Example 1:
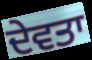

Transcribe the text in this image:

ਦੇਵਤਾ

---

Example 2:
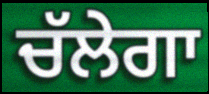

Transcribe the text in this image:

ਚੱਲੇਗਾ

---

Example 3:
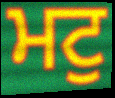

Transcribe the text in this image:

ਮਟੁ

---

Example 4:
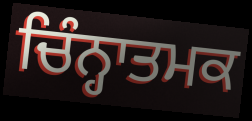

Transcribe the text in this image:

ਚਿੰਨ੍ਹਾਤਮਕ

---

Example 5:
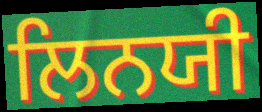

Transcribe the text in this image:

ਲਿਨਯੀ